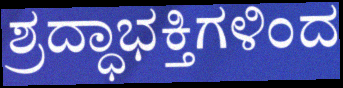
ಶ್ರದ್ಧಾಭಕ್ತಿಗಳಿಂದ